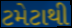
ટમેટાથી